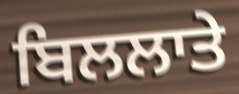
ਬਿਲਲਾਤੇ